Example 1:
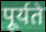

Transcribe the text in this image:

पूर्यते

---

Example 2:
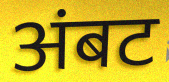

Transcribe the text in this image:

अंबट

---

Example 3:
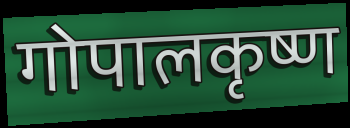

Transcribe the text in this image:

गोपालकृष्ण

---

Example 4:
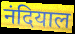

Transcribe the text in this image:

नंदियाल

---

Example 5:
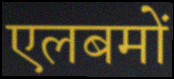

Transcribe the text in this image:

एलबमों